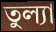
তুল্যা